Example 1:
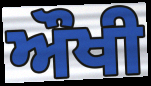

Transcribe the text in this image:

ਔਖੀ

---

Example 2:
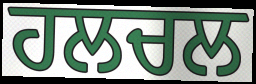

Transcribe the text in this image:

ਹਲਚਲ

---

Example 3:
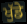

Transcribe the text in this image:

ਖੁੱਡੇ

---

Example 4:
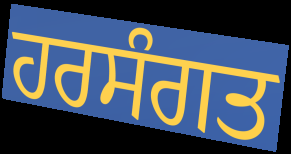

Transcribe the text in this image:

ਹਰਸੰਗਤ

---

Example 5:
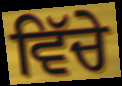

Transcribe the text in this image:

ਵਿੱਚੇ